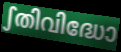
ഽതിവിദ്ധോ